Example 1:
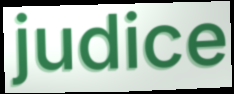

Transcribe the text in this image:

judice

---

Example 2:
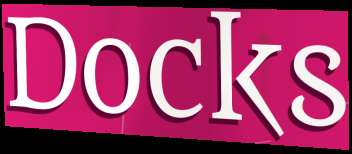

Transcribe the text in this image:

Docks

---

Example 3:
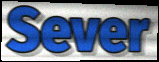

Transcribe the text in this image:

Sever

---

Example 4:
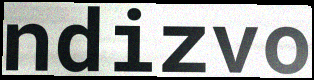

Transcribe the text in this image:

ndizvo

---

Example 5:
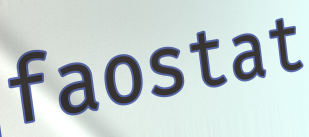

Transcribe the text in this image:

faostat